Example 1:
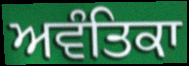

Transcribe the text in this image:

ਅਵੰਤਿਕਾ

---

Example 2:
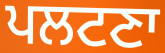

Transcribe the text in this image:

ਪਲਟਣਾ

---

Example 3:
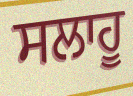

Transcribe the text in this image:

ਸਲਾਹੂ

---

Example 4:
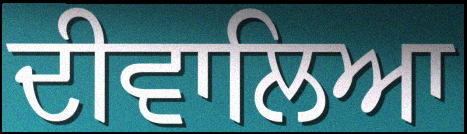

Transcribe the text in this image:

ਦੀਵਾਲਿਆ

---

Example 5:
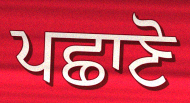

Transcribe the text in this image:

ਪਛਾਣੋ